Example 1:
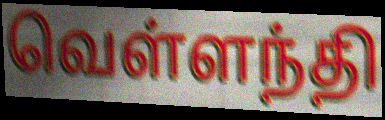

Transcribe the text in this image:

வெள்ளந்தி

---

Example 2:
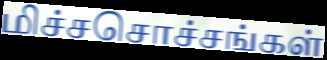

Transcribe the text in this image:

மிச்சசொச்சங்கள்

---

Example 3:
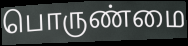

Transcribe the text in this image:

பொருண்மை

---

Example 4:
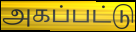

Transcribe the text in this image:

அகப்பட்டு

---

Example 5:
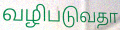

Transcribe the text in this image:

வழிபடுவதா